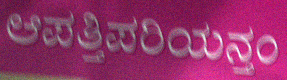
ಆಪತ್ತಿಪರಿಯನ್ತಂ